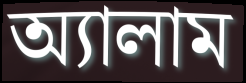
অ্যালাম